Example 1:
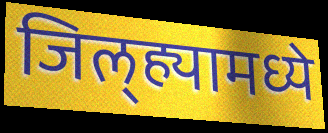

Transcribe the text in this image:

जिल्ह्यामध्ये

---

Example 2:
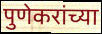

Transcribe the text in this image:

पुणेकरांच्या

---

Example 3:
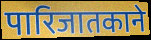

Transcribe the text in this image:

पारिजातकाने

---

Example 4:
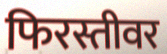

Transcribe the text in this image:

फिरस्तीवर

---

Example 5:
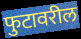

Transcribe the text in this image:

फुटावरील